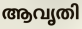
ആവൃതി